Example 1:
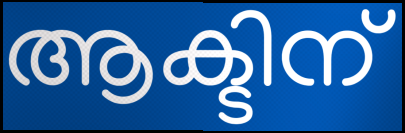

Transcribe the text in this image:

ആക്ടിന്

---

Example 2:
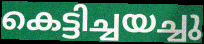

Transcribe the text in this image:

കെട്ടിച്ചയച്ചു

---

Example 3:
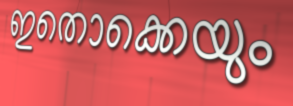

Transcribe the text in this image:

ഇതൊക്കെയും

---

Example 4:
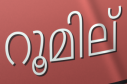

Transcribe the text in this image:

റൂമില്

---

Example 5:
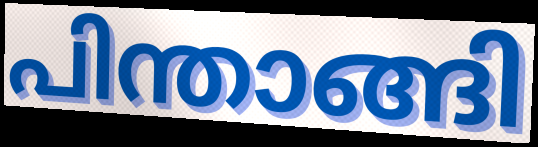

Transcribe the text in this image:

പിന്താങ്ങി